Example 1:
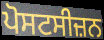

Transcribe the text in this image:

ਪੋਸਟਸੀਜ਼ਨ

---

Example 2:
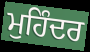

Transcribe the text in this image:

ਮੁਹਿੰਦਰ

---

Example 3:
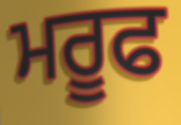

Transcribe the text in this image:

ਮਰੂਫ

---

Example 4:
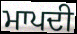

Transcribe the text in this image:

ਮਾਪਦੀ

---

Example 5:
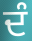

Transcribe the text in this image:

ਦੰ